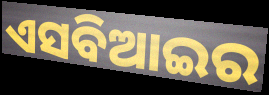
ଏସବିଆଇର